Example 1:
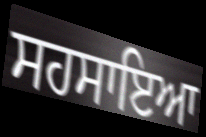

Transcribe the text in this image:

ਸਹਸਾਇਆ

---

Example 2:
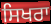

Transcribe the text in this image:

ਸਿਖਰਾ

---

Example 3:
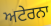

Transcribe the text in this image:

ਅਟੇਰਨਾ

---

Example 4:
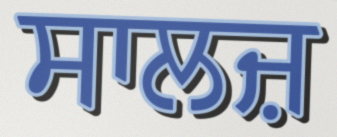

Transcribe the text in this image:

ਸਾਲਜ਼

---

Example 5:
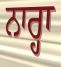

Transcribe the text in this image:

ਨਾਰ੍ਹਾ